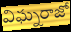
విఘ్నరాజో